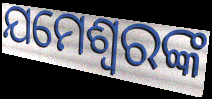
ଯମେଶ୍ୱରଙ୍କ